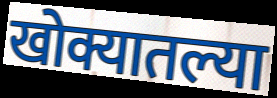
खोक्यातल्या